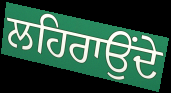
ਲਹਿਰਾਉਂਦੇ